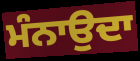
ਮੰਨਾਉਦਾ